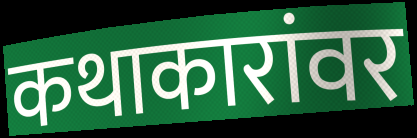
कथाकारांवर